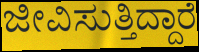
ಜೀವಿಸುತ್ತಿದ್ದಾರೆ